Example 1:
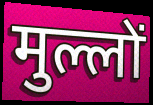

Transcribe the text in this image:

मुल्लों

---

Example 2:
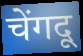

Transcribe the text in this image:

चेंगदू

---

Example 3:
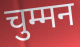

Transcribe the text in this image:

चुम्मन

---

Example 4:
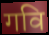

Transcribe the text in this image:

गवि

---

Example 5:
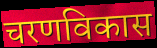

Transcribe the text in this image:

चरणविकास